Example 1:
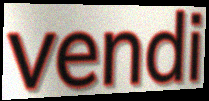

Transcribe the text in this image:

vendi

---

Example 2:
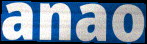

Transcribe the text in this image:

anao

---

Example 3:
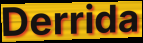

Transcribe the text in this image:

Derrida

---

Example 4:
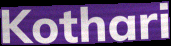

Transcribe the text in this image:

Kothari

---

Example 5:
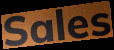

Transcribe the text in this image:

Sales